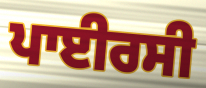
ਪਾਈਰਸੀ